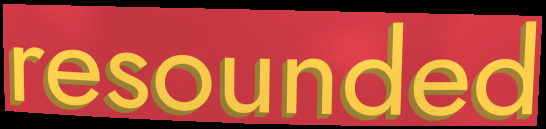
resounded